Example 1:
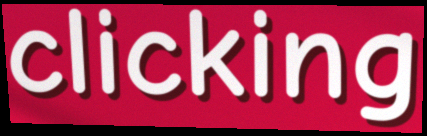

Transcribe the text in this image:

clicking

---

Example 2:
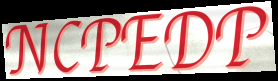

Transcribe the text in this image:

NCPEDP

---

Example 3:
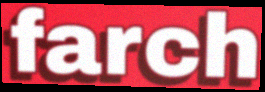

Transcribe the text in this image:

farch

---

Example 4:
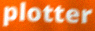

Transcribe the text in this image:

plotter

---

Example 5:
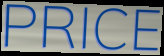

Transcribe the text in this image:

PRICE